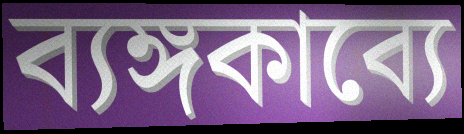
ব্যঙ্গকাব্যে